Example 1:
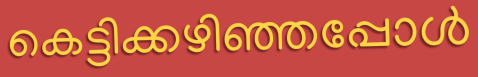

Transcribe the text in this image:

കെട്ടിക്കഴിഞ്ഞപ്പോൾ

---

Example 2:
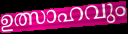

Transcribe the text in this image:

ഉത്സാഹവും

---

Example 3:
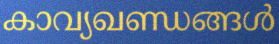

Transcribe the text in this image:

കാവ്യഖണ്ഡങ്ങൾ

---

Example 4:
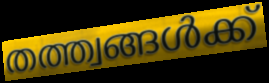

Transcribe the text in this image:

തത്ത്വങ്ങൾക്ക്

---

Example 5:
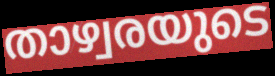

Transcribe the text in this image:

താഴ്വരയുടെ